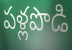
పళ్లపొడి